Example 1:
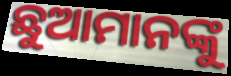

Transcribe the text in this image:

ଛୁଆମାନଙ୍କୁ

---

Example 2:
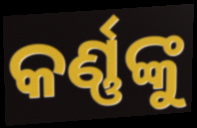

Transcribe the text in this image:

କର୍ଣ୍ଣଙ୍କୁ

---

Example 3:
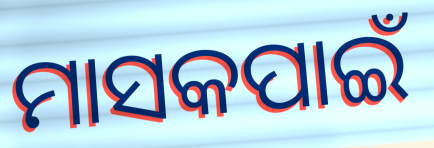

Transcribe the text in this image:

ମାସକପାଇଁ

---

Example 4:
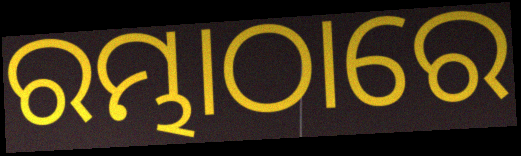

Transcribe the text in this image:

ରମ୍ଭାଠାରେ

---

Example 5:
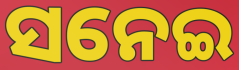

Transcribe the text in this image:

ସନେଇ